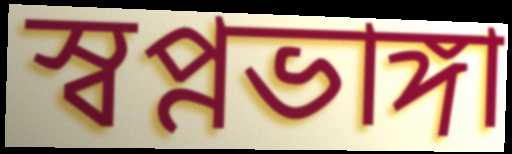
স্বপ্নভাঙ্গা